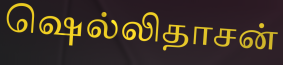
ஷெல்லிதாசன்